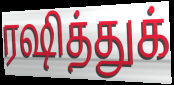
ரஷித்துக்